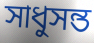
সাধুসন্ত